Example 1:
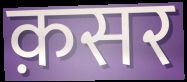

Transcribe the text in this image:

क़सर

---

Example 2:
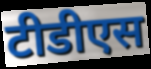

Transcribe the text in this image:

टीडीएस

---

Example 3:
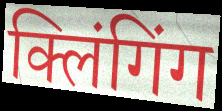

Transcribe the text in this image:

क्लिंगिंग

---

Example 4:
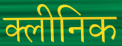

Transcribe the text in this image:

क्लीनिक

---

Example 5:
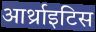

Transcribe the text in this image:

आर्थ्राइटिस